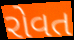
રોવત